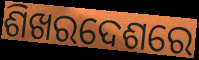
ଶିଖରଦେଶରେ